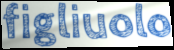
figliuolo